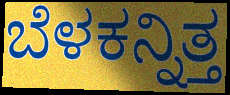
ಬೆಳಕನ್ನಿತ್ತ